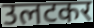
उलटकर